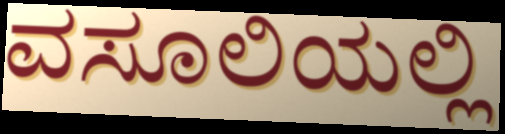
ವಸೂಲಿಯಲ್ಲಿ